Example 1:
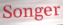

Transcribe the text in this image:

Songer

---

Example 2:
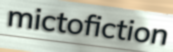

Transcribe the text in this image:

mictofiction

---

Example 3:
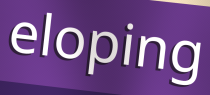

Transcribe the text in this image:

eloping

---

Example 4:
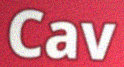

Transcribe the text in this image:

Cav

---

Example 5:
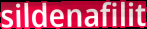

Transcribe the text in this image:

sildenafilit